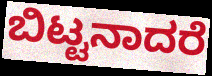
ಬಿಟ್ಟನಾದರೆ